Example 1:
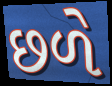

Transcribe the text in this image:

છળે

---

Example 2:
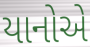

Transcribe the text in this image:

યાનોએ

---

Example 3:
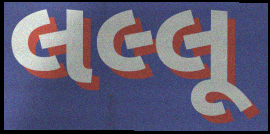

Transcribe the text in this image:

લલ્લૂ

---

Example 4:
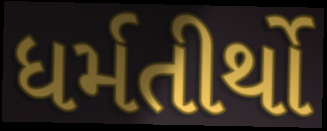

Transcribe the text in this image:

ધર્મતીર્થો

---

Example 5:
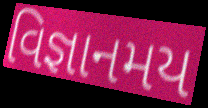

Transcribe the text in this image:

વિજ્ઞાનમય